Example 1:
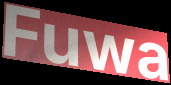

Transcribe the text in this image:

Fuwa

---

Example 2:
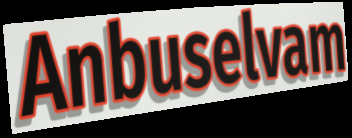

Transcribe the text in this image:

Anbuselvam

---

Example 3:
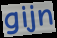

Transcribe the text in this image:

gijn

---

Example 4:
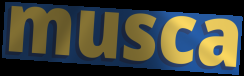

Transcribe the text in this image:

musca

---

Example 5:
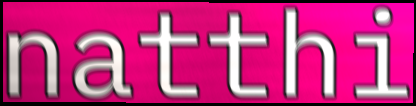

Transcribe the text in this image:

natthi